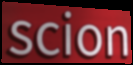
scion